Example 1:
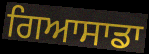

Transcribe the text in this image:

ਗਿਆਸਾਡਾ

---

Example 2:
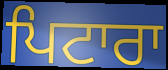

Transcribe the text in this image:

ਪਿਟਾਰਾ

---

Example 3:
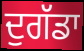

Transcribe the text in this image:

ਦੁਗੱਡਾ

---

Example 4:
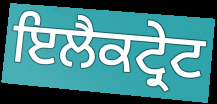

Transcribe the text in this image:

ਇਲੈਕਟ੍ਰੇਟ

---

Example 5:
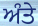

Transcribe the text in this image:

ਅੰਤੇ